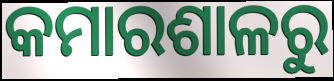
କମାରଶାଳରୁ